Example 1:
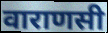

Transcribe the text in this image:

वाराणसी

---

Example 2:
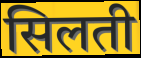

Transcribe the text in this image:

सिलती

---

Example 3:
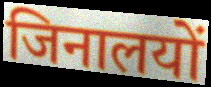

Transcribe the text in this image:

जिनालयों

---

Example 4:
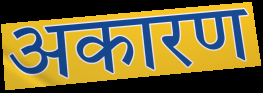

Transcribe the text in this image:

अकारण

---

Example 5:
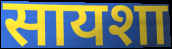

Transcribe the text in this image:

सायशा